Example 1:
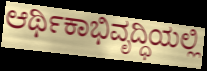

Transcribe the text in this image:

ಆರ್ಥಿಕಾಭಿವೃದ್ಧಿಯಲ್ಲಿ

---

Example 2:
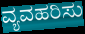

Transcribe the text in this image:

ವ್ಯವಹರಿಸು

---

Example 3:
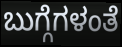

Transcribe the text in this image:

ಬುಗ್ಗೆಗಳಂತೆ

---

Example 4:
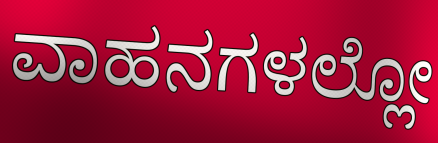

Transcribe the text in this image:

ವಾಹನಗಳಲ್ಲೋ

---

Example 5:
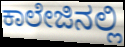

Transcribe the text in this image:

ಕಾಲೇಜಿನಲ್ಲಿ